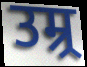
उम्र्र